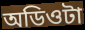
অডিওটা